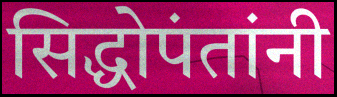
सिद्धोपंतांनी